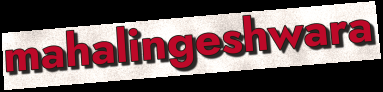
mahalingeshwara